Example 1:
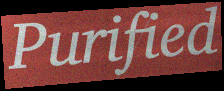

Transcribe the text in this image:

Purified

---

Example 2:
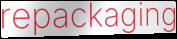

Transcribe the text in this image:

repackaging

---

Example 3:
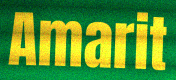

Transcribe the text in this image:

Amarit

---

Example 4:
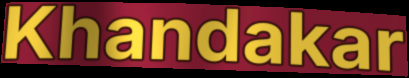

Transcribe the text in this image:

Khandakar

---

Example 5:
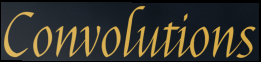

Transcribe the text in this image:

Convolutions